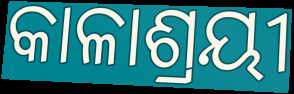
କାଳାଶ୍ରୟୀ